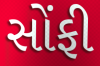
સોંફી